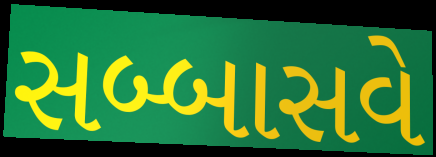
સબ્બાસવે